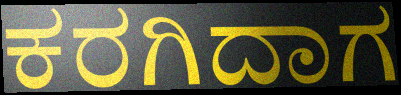
ಕರಗಿದಾಗ